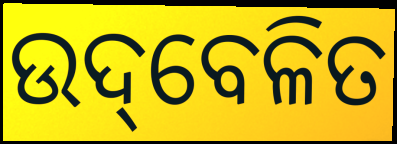
ଉଦ୍‌ବେଳିତ